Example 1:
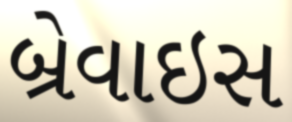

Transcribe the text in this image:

બ્રેવાઇસ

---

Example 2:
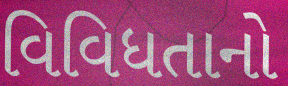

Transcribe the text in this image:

વિવિધતાનો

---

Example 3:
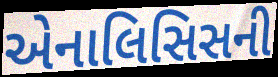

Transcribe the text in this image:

એનાલિસિસની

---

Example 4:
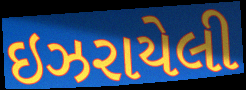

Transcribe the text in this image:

ઇઝરાયેલી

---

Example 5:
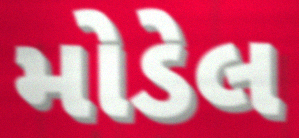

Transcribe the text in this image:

મોડેલ